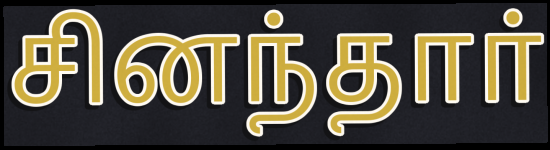
சினந்தார்